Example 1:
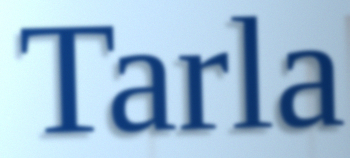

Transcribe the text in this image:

Tarla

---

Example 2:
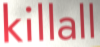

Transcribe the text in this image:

killall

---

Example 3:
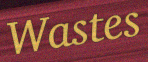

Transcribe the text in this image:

Wastes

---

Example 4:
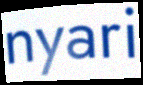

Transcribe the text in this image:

nyari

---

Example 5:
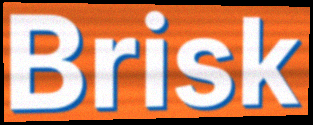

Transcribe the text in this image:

Brisk